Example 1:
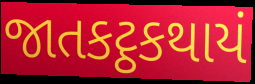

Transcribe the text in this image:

જાતકટ્ઠકથાયં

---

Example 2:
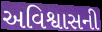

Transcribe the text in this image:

અવિશ્વાસની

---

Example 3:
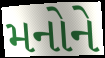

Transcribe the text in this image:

મનોને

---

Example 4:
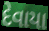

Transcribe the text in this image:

દેવાયા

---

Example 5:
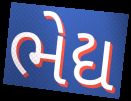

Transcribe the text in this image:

ભેદ્ય